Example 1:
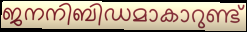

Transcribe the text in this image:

ജനനിബിഡമാകാറുണ്ട്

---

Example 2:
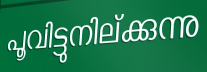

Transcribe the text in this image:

പൂവിട്ടുനില്ക്കുന്നു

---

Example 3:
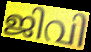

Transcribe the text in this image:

ജിവി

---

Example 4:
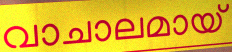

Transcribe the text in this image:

വാചാലമായ്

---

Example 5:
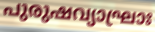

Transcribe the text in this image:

പുരുഷവ്യാഘ്രാഃ